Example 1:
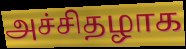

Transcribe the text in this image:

அச்சிதழாக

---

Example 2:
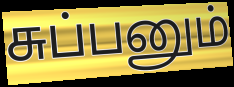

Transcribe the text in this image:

சுப்பனும்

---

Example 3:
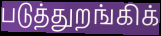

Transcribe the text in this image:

படுத்துறங்கிக்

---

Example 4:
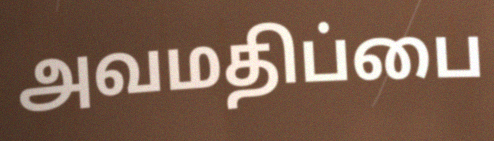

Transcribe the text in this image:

அவமதிப்பை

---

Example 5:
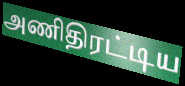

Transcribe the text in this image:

அணிதிரட்டிய